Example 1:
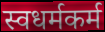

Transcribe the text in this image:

स्वधर्मकर्म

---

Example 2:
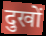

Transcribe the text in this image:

दुखों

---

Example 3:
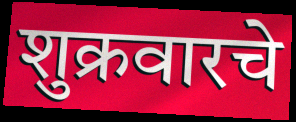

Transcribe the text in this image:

शुक्रवारचे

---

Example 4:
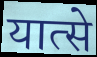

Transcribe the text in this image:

यात्से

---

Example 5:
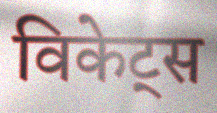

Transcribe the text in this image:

विकेट्स